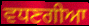
ਵਧਣਗੀਆ